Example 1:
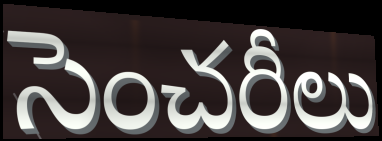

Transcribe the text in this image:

సెంచరీలు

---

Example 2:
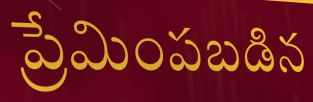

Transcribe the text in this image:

ప్రేమింపబడిన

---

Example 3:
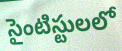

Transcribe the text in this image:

సైంటిస్టులలో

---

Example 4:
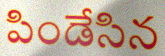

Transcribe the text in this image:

పిండేసిన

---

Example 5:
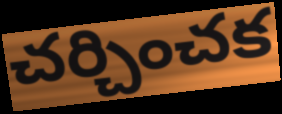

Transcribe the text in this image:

చర్చించక